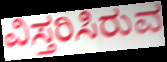
ವಿಸ್ತರಿಸಿರುವ